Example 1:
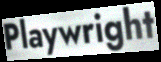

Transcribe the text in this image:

Playwright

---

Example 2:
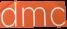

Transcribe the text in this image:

dmc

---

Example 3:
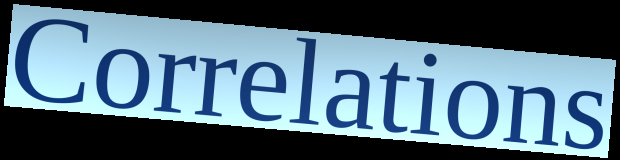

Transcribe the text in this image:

Correlations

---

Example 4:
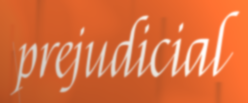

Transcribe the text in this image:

prejudicial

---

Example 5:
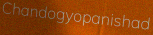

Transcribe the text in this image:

Chandogyopanishad